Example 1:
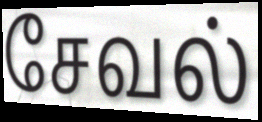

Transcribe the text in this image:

சேவல்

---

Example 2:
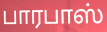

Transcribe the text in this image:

பாரபாஸ்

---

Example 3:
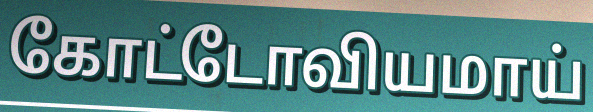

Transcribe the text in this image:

கோட்டோவியமாய்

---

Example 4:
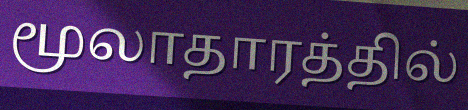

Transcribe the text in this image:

மூலாதாரத்தில்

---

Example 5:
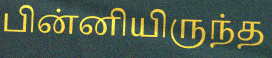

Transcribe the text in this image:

பின்னியிருந்த